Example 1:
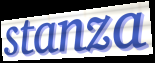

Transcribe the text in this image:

stanza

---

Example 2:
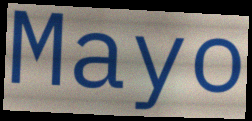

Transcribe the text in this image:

Mayo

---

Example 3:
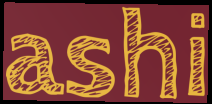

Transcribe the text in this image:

ashi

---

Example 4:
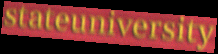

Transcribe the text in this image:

stateuniversity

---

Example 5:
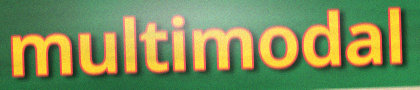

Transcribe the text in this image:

multimodal